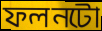
ফলনটো